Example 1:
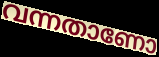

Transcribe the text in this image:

വന്നതാണോ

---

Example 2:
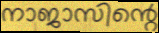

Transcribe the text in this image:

നാജാസിന്റെ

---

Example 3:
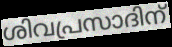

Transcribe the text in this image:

ശിവപ്രസാദിന്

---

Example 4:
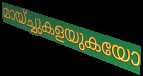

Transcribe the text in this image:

മായ്ച്ചുകളയുകയോ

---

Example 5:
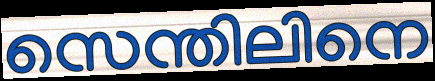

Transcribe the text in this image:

സെന്തിലിനെ